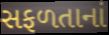
સફળતાનાં